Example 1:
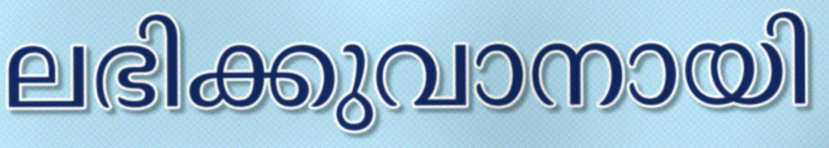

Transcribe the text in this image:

ലഭിക്കുവാനായി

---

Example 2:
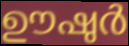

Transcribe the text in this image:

ഊഷുർ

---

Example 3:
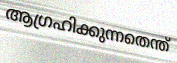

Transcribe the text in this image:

ആഗ്രഹിക്കുന്നതെന്ത്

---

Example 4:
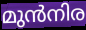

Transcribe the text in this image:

മുൻനിര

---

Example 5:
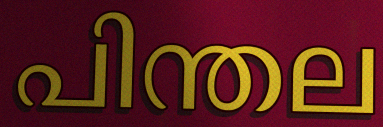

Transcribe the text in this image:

പിന്തല